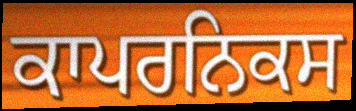
ਕਾਪਰਨਿਕਸ